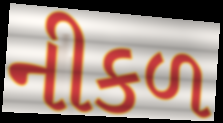
નીકળ